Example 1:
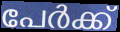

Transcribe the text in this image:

പേർക്ക്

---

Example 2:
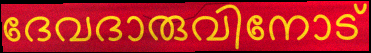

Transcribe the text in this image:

ദേവദാരുവിനോട്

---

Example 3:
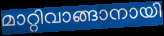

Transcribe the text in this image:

മാറ്റിവാങ്ങാനായി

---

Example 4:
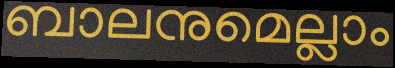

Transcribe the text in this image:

ബാലനുമെല്ലാം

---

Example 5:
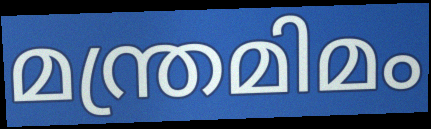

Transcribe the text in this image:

മന്ത്രമിമം